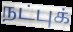
நட்புக்